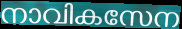
നാവികസേന